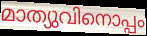
മാത്യുവിനൊപ്പം